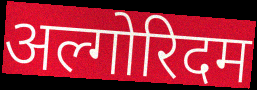
अल्गोरिदम